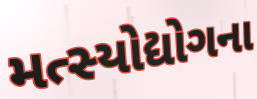
મત્સ્યોદ્યોગના